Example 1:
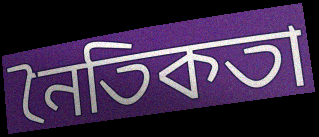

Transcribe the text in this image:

নৈতিকতা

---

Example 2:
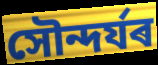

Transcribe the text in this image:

সৌন্দৰ্যৰ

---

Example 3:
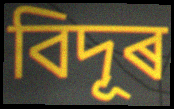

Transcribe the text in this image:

বিদূৰ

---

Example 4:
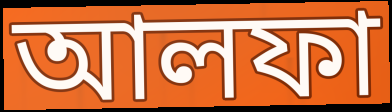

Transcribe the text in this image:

আলফা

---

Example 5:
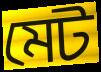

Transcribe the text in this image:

মেট